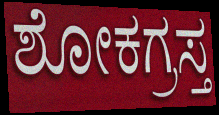
ಶೋಕಗ್ರಸ್ತ